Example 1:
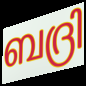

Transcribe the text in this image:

ബദ്രി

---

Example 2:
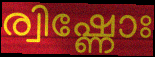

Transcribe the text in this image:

ര്വിഷ്ണോഃ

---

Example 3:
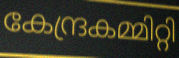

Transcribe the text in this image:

കേന്ദ്രകമ്മിറ്റി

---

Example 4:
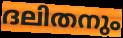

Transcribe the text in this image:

ദലിതനും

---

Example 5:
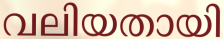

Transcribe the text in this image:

വലിയതായി